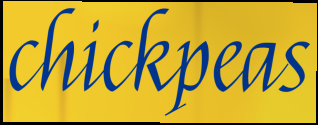
chickpeas